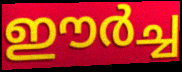
ഈർച്ച